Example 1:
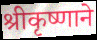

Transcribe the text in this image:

श्रीकृष्णाने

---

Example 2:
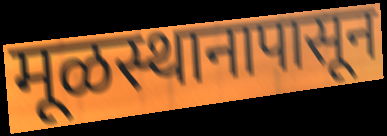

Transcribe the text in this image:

मूळस्थानापासून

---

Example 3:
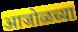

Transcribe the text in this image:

आजोळच्या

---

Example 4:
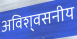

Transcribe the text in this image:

अविश्वसनीय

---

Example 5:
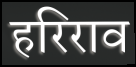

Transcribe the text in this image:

हरिराव